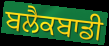
ਬਲੈਕਬਾਡੀ